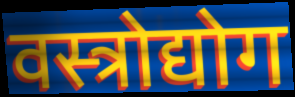
वस्त्रोद्योग